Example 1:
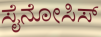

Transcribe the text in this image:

ಸೈನೋಸಿಸ್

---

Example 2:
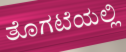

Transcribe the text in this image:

ತೊಗಟೆಯಲ್ಲಿ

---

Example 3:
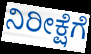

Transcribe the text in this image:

ನಿರೀಕ್ಷೆಗೆ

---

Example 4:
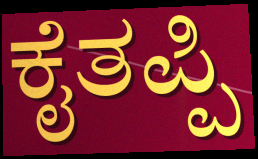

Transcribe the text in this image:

ಕೈತಪ್ಪಿ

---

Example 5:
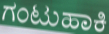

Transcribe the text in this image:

ಗಂಟುಹಾಕಿ